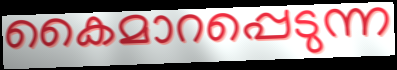
കൈമാറപ്പെടുന്ന